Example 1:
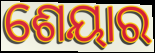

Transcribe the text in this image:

ଶେୟାର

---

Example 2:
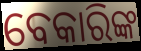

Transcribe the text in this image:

ବେକାରିଙ୍କ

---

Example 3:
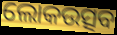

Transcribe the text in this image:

ଲୋକଉତ୍ସବ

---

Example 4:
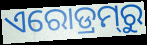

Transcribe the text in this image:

ଏରୋଡ୍ରମ୍‍ରୁ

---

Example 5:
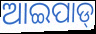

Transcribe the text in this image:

ଆଇପାଡ୍